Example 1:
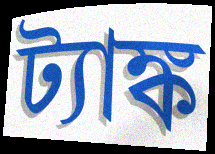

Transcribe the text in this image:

ট্যাঙ্ক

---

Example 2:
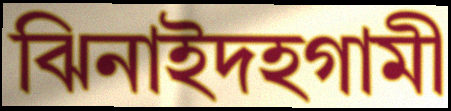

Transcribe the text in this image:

ঝিনাইদহগামী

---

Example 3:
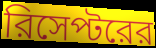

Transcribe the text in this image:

রিসেপ্টরের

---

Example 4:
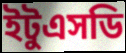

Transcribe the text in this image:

ইটুএসডি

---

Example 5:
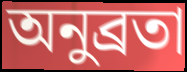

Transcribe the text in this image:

অনুব্রতা